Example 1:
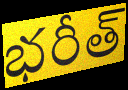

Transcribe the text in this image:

భరీత్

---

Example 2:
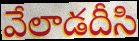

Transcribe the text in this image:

వేలాడదీసి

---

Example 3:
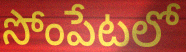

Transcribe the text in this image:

సోంపేటలో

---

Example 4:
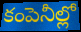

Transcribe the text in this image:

కంపెనీల్లో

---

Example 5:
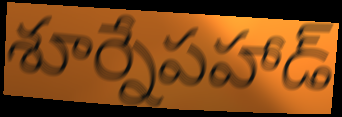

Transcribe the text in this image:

శూర్నేపహాడ్